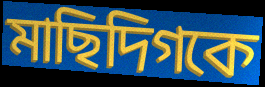
মাছিদিগকে